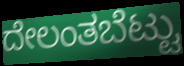
ದೇಲಂತಬೆಟ್ಟು